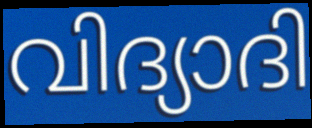
വിദ്യാദി